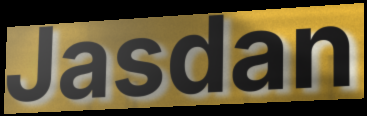
Jasdan